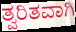
ತ್ವರಿತವಾಗಿ